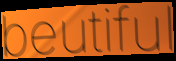
beutiful